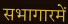
सभागारमें